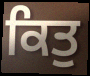
ਕਿਤੁ